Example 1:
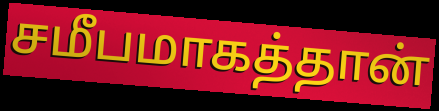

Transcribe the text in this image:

சமீபமாகத்தான்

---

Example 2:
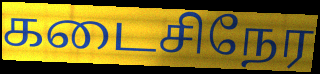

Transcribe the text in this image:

கடைசிநேர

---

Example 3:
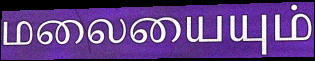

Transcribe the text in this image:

மலையையும்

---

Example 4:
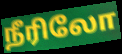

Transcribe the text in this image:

நீரிலோ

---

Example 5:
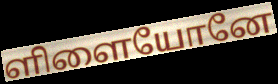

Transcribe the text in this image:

ளிளையோனே